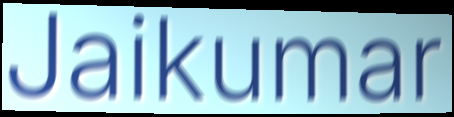
Jaikumar